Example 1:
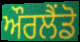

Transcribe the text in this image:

ਔਰਲੈਂਡੋ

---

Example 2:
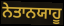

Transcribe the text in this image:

ਨੇਤਾਨਯਾਹੂ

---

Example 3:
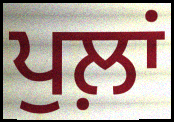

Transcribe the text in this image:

ਪੁਲ਼ਾਂ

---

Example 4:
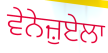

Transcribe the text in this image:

ਵੇਨੇਜ਼ੁਏਲਾ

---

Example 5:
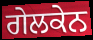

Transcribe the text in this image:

ਗੇਲਕੇਨ